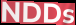
NDDs